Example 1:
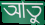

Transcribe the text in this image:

আতু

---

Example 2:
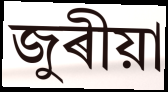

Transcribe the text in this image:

জুৰীয়া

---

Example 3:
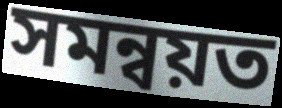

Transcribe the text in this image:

সমন্বয়ত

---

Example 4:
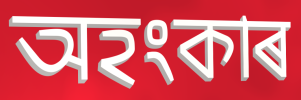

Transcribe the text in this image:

অহংকাৰ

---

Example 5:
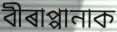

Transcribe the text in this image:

বীৰাপ্পানাক